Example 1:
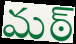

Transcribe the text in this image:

మఠ్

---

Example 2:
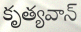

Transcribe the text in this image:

కృత్యవాన్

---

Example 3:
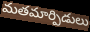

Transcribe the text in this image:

మతమార్పిడులు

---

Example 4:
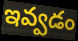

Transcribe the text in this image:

ఇవ్వడం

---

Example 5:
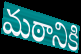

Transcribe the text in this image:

మఠానికి